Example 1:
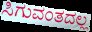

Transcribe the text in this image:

ಸಿಗುವಂತದಲ್ಲ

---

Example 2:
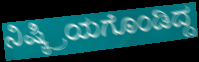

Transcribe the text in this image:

ನಿಷ್ಕ್ರಿಯಗೊಂಡಿದ್ದ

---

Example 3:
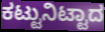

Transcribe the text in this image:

ಕಟ್ಟುನಿಟ್ಟಾದ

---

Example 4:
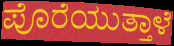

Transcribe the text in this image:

ಪೊರೆಯುತ್ತಾಳೆ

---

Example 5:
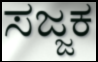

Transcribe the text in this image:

ಸಜ್ಜಕ